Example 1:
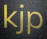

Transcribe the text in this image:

kjp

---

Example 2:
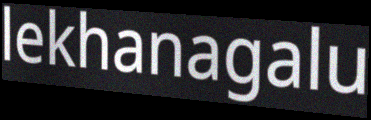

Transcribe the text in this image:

lekhanagalu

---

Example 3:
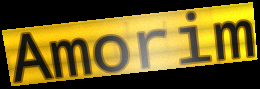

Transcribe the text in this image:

Amorim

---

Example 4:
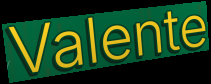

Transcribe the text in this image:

Valente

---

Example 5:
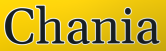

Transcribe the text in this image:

Chania